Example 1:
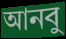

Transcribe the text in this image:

আনবু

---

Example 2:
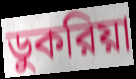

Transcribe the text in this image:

ডুকরিয়া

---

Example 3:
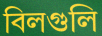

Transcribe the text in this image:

বিলগুলি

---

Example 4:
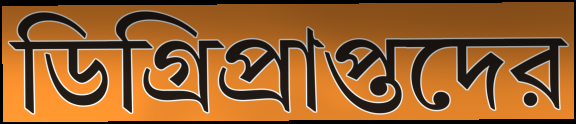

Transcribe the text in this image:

ডিগ্রিপ্রাপ্তদের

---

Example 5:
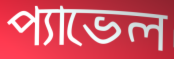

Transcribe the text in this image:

প্যাভেল